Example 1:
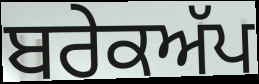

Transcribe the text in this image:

ਬਰੇਕਅੱਪ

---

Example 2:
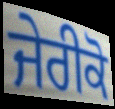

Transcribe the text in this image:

ਜੇਰੀਕੋ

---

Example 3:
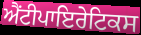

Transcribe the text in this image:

ਐਂਟੀਪਾਇਰੇਟਿਕਸ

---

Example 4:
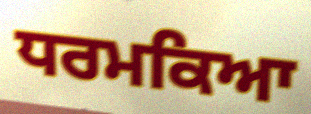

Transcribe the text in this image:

ਧਰਮਕਿਆ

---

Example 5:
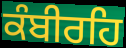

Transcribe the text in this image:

ਕੰਬੀਰਹਿ